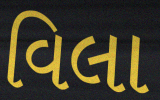
વિલા